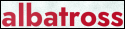
albatross